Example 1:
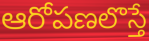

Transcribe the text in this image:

ఆరోపణలొస్తే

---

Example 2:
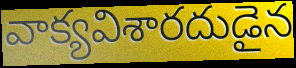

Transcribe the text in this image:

వాక్యవిశారదుడైన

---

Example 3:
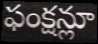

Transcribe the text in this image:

ఫంక్షన్లూ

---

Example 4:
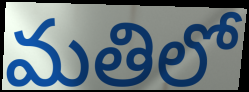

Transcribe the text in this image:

మతిలో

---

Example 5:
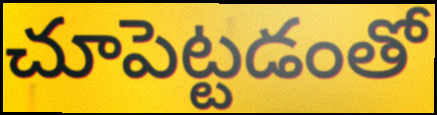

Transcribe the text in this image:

చూపెట్టడంతో